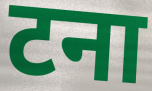
टना